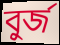
বুর্জ